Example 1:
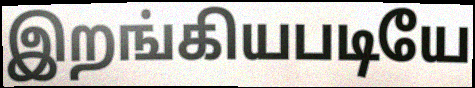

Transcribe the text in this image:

இறங்கியபடியே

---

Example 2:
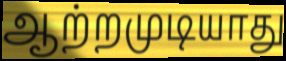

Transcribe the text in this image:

ஆற்றமுடியாது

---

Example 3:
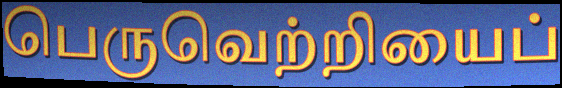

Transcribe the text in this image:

பெருவெற்றியைப்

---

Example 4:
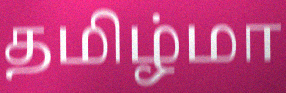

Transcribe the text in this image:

தமிழ்மா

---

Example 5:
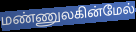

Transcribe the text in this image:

மண்ணுலகின்மேல்